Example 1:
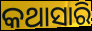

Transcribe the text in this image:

କଥାସାରି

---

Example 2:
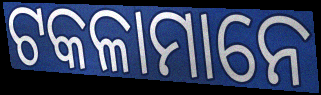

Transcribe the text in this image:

ଟକଳାମାନେ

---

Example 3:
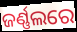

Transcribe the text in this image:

ଜର୍ଣ୍ଣଲରେ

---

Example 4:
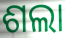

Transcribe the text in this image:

ଶଲା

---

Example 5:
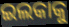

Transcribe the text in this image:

ଇଲକାକୁ